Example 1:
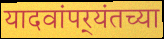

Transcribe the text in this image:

यादवांपर्यंतच्या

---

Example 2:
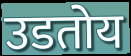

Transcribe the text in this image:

उडतोय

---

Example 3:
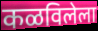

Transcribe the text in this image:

कळविलेला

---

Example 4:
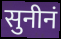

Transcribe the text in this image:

सुनीनं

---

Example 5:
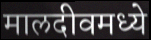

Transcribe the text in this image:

मालदीवमध्ये